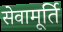
सेवामूर्ति